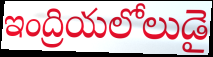
ఇంద్రియలోలుడై